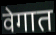
वेगात